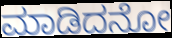
ಮಾಡಿದನೋ